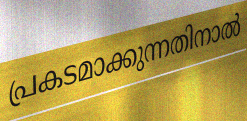
പ്രകടമാക്കുന്നതിനാൽ